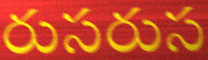
రుసరుస